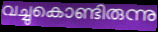
വച്ചുകൊണ്ടിരുന്നു